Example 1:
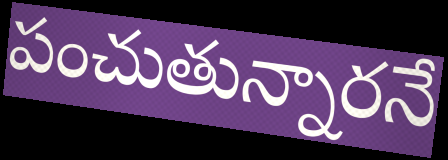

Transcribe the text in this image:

పంచుతున్నారనే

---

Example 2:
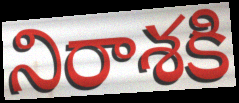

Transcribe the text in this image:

నిరాశకి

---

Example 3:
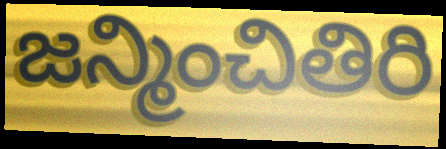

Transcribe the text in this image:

జన్మించితిరి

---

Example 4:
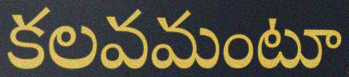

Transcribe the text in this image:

కలవమంటూ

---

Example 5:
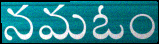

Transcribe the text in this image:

నమఓం